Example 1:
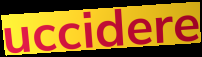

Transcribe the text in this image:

uccidere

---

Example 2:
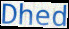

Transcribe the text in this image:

Dhed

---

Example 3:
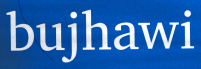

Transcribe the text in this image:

bujhawi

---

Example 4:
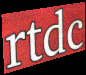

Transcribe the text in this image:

rtdc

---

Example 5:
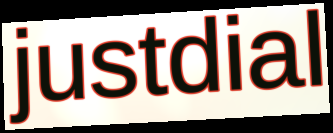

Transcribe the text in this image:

justdial